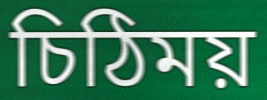
চিঠিময়